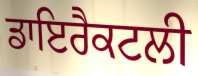
ਡਾਇਰੈਕਟਲੀ